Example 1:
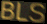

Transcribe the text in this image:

BLS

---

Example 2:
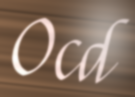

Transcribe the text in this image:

Ocd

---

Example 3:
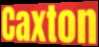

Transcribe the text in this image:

Caxton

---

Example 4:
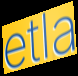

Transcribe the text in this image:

etla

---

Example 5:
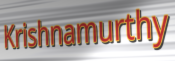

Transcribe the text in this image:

Krishnamurthy